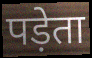
पड़ेता